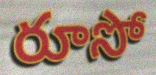
రూసో